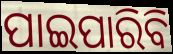
ପାଇପାରିବି